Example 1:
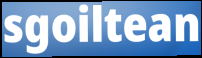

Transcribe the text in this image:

sgoiltean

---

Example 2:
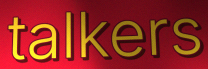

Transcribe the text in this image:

talkers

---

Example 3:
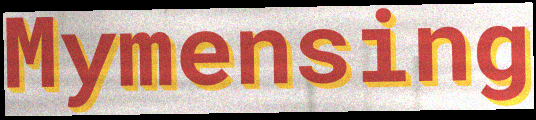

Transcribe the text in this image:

Mymensing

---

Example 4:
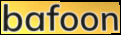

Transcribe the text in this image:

bafoon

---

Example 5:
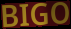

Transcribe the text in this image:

BIGO